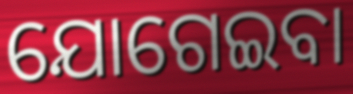
ଯୋଗେଇବା